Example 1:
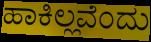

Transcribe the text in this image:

ಹಾಕಿಲ್ಲವೆಂದು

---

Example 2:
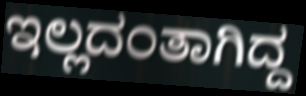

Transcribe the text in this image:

ಇಲ್ಲದಂತಾಗಿದ್ದ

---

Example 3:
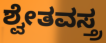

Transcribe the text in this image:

ಶ್ವೇತವಸ್ತ್ರ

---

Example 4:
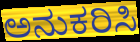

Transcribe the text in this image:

ಅನುಕರಿಸಿ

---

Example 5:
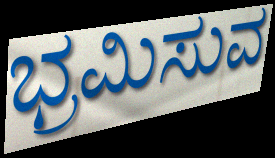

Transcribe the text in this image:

ಭ್ರಮಿಸುವ